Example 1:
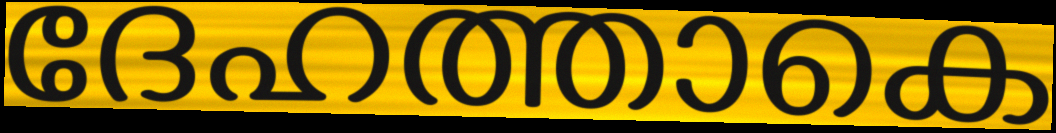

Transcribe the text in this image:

ദേഹത്താകെ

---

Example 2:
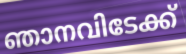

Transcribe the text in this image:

ഞാനവിടേക്ക്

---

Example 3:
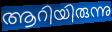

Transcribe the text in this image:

ആറിയിരുന്നു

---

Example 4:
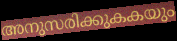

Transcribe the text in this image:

അനുസരിക്കുകകയും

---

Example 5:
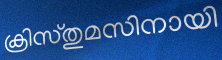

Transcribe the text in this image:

ക്രിസ്തുമസിനായി